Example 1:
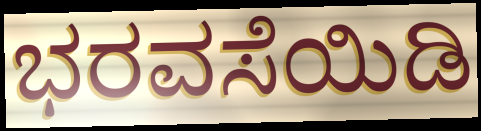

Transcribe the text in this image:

ಭರವಸೆಯಿಡಿ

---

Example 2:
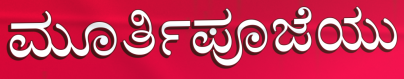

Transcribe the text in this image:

ಮೂರ್ತಿಪೂಜೆಯು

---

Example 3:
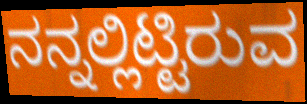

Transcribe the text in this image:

ನನ್ನಲ್ಲಿಟ್ಟಿರುವ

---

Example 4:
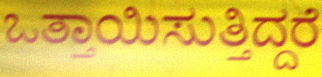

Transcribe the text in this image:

ಒತ್ತಾಯಿಸುತ್ತಿದ್ದರೆ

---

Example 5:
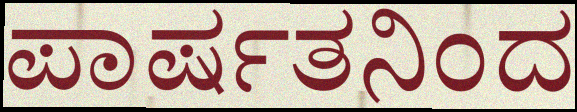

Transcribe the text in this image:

ಪಾರ್ಷತನಿಂದ